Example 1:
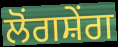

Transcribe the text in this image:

ਲੋਂਗਸ਼ੇਂਗ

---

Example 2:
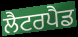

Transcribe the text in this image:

ਲੈਟਰਪੈਡ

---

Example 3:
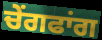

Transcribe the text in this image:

ਚੇਂਗਫਾਂਗ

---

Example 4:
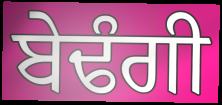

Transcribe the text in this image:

ਬੇਢੰਗੀ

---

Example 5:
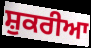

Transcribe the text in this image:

ਸ਼ੁਕਰੀਆ